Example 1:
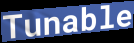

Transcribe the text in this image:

Tunable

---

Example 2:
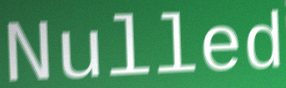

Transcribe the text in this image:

Nulled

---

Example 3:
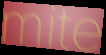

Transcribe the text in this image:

mite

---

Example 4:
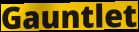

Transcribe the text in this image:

Gauntlet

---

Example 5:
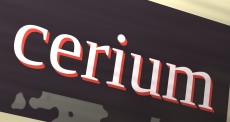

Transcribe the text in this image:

cerium